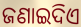
ଜଣାଇଦିଏ